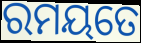
ରମୟତେ